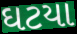
ઘટયા